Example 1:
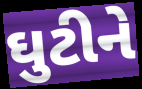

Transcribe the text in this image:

ઘુટીને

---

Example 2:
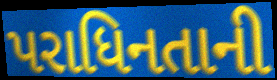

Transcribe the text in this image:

પરાધિનતાની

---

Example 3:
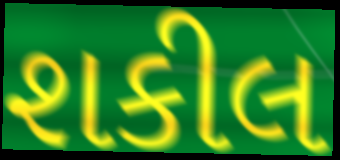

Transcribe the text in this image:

શકીલ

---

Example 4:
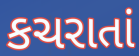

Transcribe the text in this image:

કચરાતાં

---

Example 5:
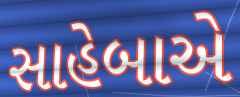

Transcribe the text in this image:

સાહેબાએ